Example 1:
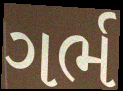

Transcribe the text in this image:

ગર્ભ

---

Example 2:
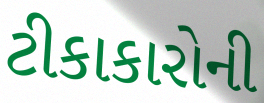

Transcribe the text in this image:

ટીકાકારોની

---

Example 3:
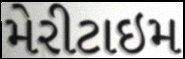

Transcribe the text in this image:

મેરીટાઇમ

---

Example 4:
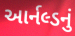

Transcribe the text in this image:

આર્નલ્ડનું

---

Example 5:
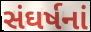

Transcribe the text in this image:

સંઘર્ષનાં